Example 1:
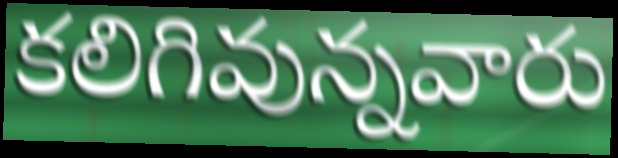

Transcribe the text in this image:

కలిగివున్నవారు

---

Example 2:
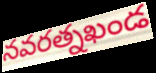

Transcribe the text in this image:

నవరత్నఖండ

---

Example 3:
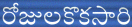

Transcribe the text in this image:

రోజులకొకసారి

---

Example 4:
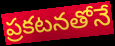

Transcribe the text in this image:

ప్రకటనతోనే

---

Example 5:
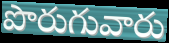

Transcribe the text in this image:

పొరుగువారు